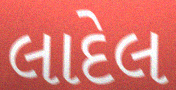
લાદેલ